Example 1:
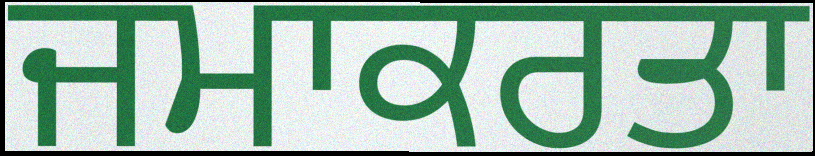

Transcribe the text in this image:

ਜਮਾਕਰਤਾ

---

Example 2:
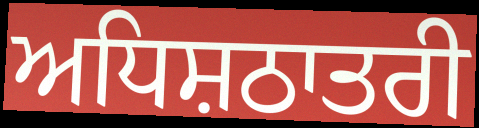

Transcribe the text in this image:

ਅਧਿਸ਼ਠਾਤਰੀ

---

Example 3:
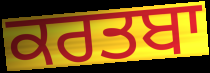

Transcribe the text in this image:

ਕਰਤਬਾ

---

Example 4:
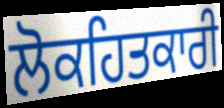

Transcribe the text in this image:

ਲੋਕਹਿਤਕਾਰੀ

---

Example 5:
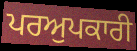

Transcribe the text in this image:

ਪਰਅੁਪਕਾਰੀ